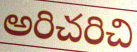
అరిచరిచి